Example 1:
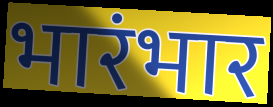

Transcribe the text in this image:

भारंभार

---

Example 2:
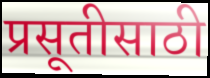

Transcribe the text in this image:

प्रसूतीसाठी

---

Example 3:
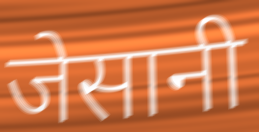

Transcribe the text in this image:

जेसानी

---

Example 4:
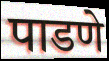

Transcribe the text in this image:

पाडणे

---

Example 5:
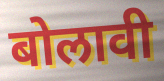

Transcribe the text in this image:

बोलावी